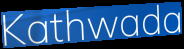
Kathwada